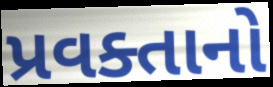
પ્રવક્તાનો